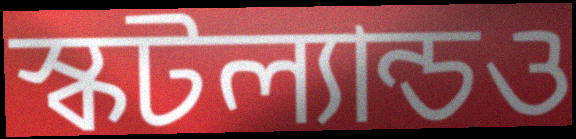
স্কটল্যান্ডও